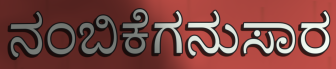
ನಂಬಿಕೆಗನುಸಾರ